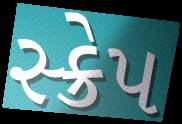
સ્ક્રેપ